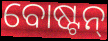
ବୋଷ୍ଟନ୍